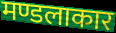
मण्डलाकार